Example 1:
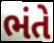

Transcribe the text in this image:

ભંતે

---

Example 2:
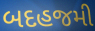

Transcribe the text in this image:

બદહજમી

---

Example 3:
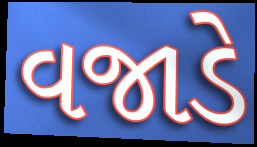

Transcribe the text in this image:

વજાડે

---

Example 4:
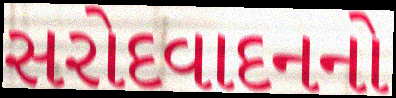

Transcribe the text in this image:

સરોદવાદનનો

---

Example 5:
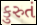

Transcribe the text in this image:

કુરુતં